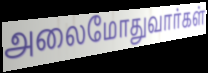
அலைமோதுவார்கள்